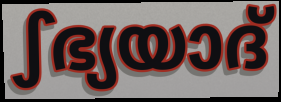
ഽഭ്യയാദ്